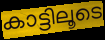
കാട്ടിലൂടെ